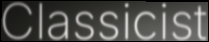
Classicist